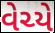
વેચ્યે